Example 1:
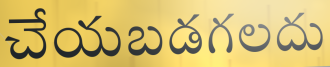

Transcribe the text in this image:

చేయబడగలదు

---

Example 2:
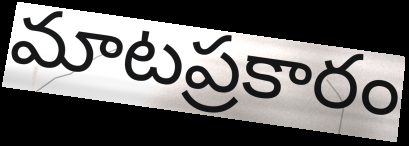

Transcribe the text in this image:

మాటప్రకారం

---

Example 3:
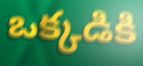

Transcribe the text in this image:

ఒక్కడికి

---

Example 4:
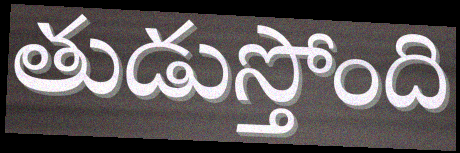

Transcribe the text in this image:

తుడుస్తోంది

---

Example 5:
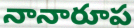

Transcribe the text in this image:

నానారూప